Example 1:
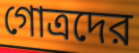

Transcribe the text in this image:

গোত্রদের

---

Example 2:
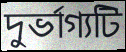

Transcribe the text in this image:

দুর্ভাগ্যটি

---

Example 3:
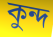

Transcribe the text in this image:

কুন্দ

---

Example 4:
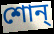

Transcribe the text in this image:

শোন্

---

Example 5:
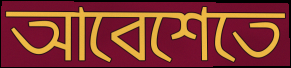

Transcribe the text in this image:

আবেশেতে